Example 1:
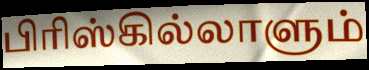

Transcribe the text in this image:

பிரிஸ்கில்லாளும்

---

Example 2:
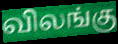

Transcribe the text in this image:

விலங்கு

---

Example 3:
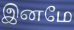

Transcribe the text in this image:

இனமே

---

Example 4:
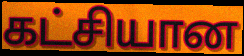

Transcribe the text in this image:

கட்சியான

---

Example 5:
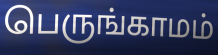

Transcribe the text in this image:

பெருங்காமம்